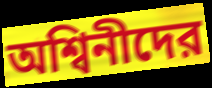
অশ্বিনীদের